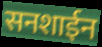
सनशाईन